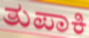
ತುಪಾಕಿ